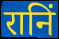
रानिं